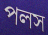
পলস